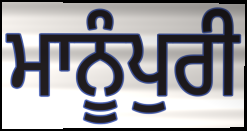
ਮਾਨੂੰਪੁਰੀ